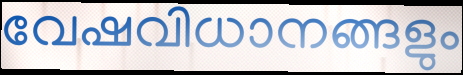
വേഷവിധാനങ്ങളും